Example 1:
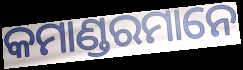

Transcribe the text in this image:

କମାଣ୍ଡରମାନେ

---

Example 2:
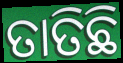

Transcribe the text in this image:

ତାତିଛି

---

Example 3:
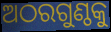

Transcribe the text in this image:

ଅଠରଗୁଣ୍ଠକୁ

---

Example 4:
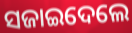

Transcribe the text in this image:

ସଜାଇଦେଲେ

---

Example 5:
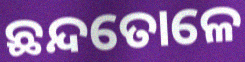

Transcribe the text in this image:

ଛନ୍ଦତୋଳେ